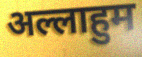
अल्लाहुम